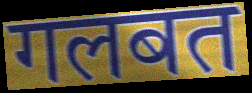
गलबत